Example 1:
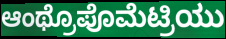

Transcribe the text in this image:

ಆಂಥ್ರೊಪೊಮೆಟ್ರಿಯು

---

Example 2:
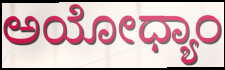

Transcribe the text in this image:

ಅಯೋಧ್ಯಾಂ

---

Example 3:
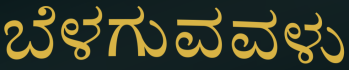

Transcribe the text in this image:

ಬೆಳಗುವವಳು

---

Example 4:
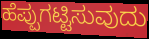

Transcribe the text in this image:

ಹೆಪ್ಪುಗಟ್ಟಿಸುವುದು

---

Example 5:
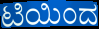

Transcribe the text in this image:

ಟಿಯಿಂದ